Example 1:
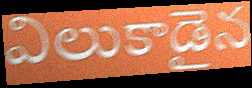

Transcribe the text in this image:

విలుకాడైన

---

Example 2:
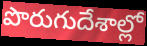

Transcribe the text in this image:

పొరుగుదేశాల్లో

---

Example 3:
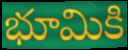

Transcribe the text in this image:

భూమికి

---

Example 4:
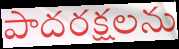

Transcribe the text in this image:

పాదరక్షలను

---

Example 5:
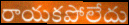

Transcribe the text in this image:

రాయకపోలేదు